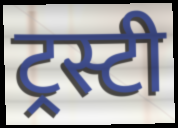
ट्रस्टी